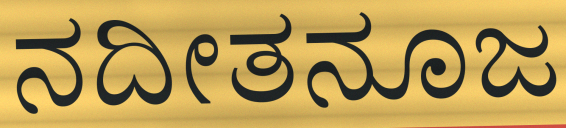
ನದೀತನೂಜ